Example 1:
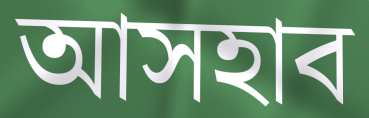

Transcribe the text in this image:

আসহাব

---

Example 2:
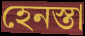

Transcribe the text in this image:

হেনস্তা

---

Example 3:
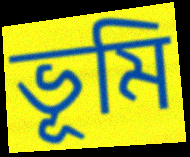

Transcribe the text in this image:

ভূমি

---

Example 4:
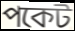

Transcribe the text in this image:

পকেট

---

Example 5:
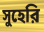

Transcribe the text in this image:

সুহেরি